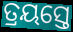
ତ୍ରୟସ୍ତେ